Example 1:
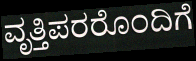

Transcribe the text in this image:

ವೃತ್ತಿಪರರೊಂದಿಗೆ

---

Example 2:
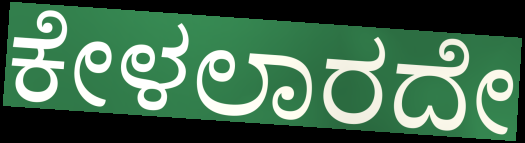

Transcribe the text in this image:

ಕೇಳಲಾರದೇ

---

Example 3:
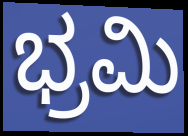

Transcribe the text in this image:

ಭ್ರಮಿ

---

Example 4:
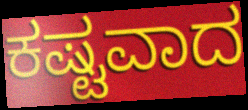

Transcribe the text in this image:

ಕಷ್ಟವಾದ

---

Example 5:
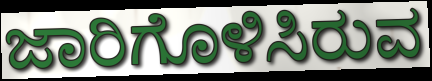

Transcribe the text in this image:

ಜಾರಿಗೊಳಿಸಿರುವ